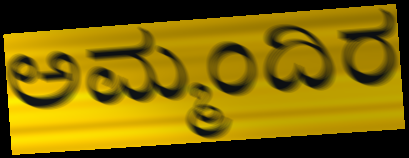
ಅಮ್ಮಂದಿರ